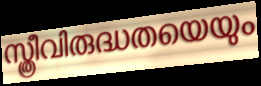
സ്ത്രീവിരുദ്ധതയെയും